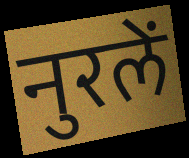
नुरलें